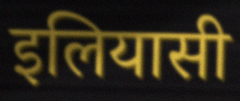
इलियासी